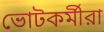
ভোটকর্মীরা